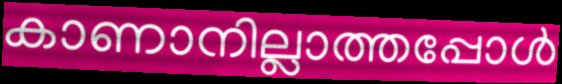
കാണാനില്ലാത്തപ്പോൾ